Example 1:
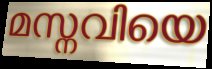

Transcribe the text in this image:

മസ്നവിയെ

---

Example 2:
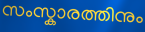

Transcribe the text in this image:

സംസ്കാരത്തിനും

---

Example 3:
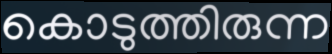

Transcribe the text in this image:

കൊടുത്തിരുന്ന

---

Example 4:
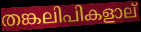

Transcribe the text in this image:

തങ്കലിപികളാല്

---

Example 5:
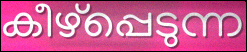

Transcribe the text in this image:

കീഴ്പ്പെടുന്ന